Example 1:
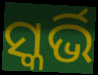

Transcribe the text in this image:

ସ୍କର୍ଭି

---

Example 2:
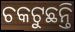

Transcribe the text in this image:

ଚକଟୁଛନ୍ତି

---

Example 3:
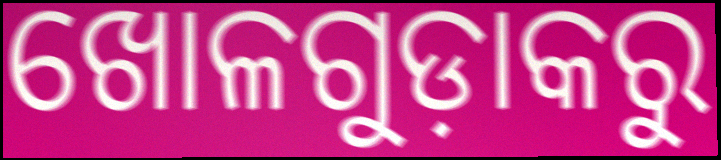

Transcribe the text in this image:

ଖୋଳଗୁଡ଼ାକରୁ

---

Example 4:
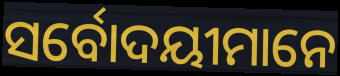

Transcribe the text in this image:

ସର୍ବୋଦୟୀମାନେ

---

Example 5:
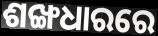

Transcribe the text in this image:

ଶଙ୍ଖଧାରରେ